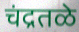
चंद्रतळे